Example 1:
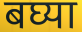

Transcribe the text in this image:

बघ्या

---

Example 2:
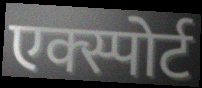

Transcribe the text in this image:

एक्‍स्पोर्ट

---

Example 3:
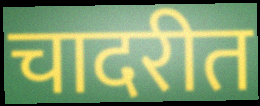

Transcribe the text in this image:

चादरीत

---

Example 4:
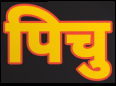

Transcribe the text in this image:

पिचु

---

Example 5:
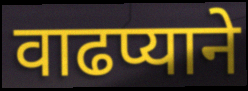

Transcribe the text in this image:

वाढप्याने